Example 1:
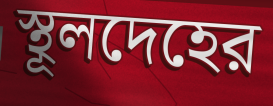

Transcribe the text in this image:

স্থূলদেহের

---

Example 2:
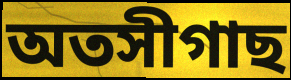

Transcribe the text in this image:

অতসীগাছ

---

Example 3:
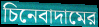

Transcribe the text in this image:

চিনেবাদামের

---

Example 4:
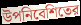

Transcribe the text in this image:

উপনিবেশিতের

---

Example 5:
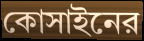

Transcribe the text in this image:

কোসাইনের